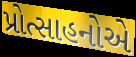
પ્રોત્સાહનોએ